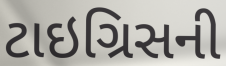
ટાઇગ્રિસની